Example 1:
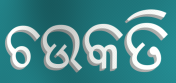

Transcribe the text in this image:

ଚଉକତି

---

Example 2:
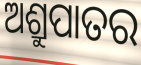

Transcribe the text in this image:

ଅଶ୍ରୁପାତର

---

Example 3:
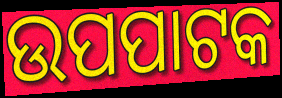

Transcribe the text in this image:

ଉପପାଟକ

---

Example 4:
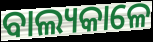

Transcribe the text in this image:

ବାଲ୍ୟକାଳେ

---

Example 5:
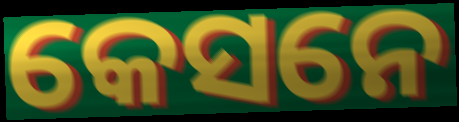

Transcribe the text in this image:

କେସନେ